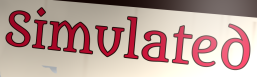
Simulated